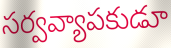
సర్వవ్యాపకుడూ